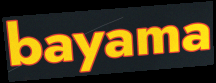
bayama